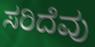
ಸರಿದೆವು